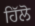
ਹਿੱਲੋ